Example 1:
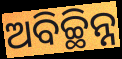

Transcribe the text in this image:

ଅବିଚ୍ଛିନ୍ନ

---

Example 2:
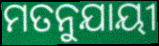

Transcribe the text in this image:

ମତନୁଯାୟୀ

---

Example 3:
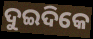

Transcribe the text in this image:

ଦୁଇଦିକେ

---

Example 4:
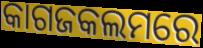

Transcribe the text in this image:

କାଗଜକଲମରେ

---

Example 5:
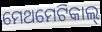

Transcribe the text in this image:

ମେଥମେଟିକାଲ୍